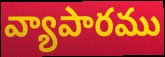
వ్యాపారము